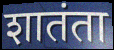
शातंता